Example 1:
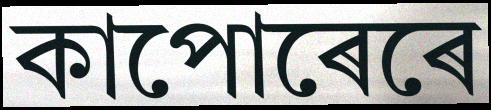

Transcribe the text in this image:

কাপোৰেৰে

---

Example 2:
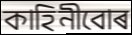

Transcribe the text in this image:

কাহিনীবোৰ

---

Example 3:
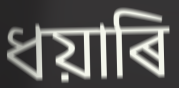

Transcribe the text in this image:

ধয়াৰি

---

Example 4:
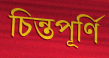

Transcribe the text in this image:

চিন্তপূৰ্ণি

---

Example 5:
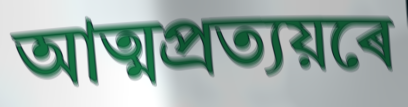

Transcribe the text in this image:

আত্মপ্ৰত্যয়ৰে